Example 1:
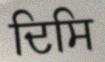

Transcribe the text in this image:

ਦਿਸਿ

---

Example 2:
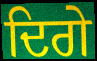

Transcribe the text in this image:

ਦਿਗੇ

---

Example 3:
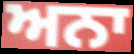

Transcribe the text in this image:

ਅਨਾ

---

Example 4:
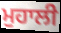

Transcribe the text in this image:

ਮੁਹਾਲੀ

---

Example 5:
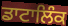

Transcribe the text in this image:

ਡਾਟਾਲਿੰਕ